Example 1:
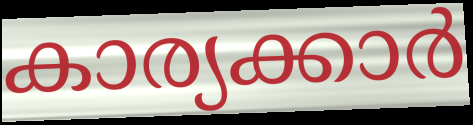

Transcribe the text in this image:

കാര്യക്കാർ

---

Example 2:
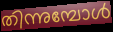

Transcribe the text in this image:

തിന്നുമ്പോൾ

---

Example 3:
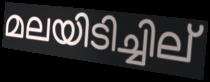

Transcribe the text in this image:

മലയിടിച്ചില്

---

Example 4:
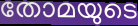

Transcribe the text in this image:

തോമയുടെ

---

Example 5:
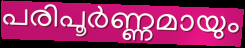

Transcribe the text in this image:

പരിപൂർണ്ണമായും